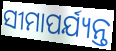
ସୀମାପର୍ଯ୍ୟନ୍ତ